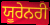
ਯੂਰੇਨਰੀ